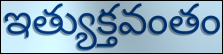
ఇత్యుక్తవంతం